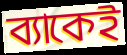
ব্যাকেই